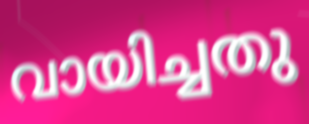
വായിച്ചതു